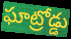
ఘాట్రోడ్డు